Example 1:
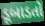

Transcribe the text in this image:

ડૂબાડતો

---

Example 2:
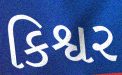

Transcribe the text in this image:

કિશ્વર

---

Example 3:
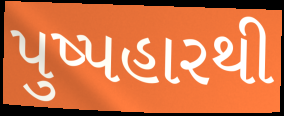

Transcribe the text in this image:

પુષ્પહારથી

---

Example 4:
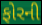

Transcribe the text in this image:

ફોરની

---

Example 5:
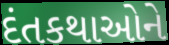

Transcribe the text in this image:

દંતકથાઓને